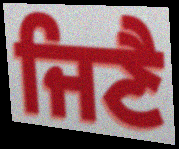
ਜਿਣੈ